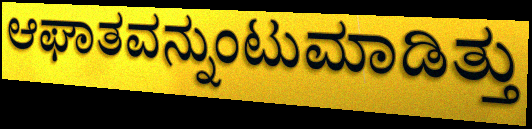
ಆಘಾತವನ್ನುಂಟುಮಾಡಿತ್ತು